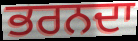
ਭਰਨਦਾ